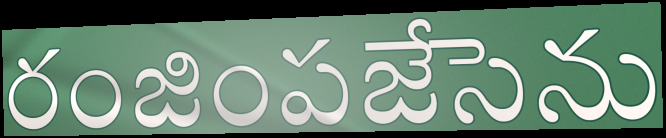
రంజింపజేసెను